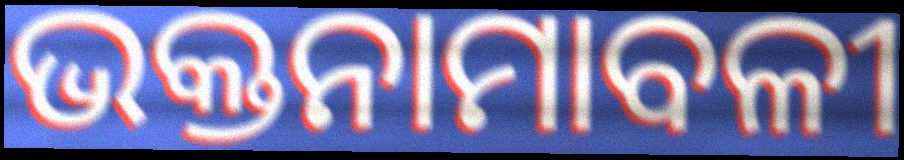
ଭକ୍ତନାମାବଳୀ